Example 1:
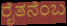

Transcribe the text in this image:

ರೈತನೆಂಬ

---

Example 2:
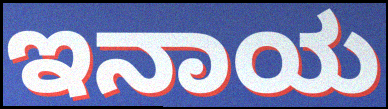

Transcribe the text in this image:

ಇನಾಯ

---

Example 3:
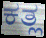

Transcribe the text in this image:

ಕತ್ಲ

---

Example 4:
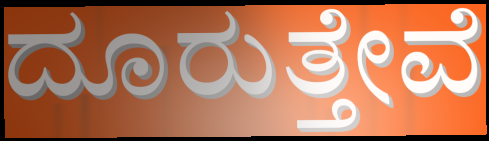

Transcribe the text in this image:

ದೂರುತ್ತೇವೆ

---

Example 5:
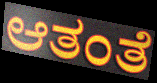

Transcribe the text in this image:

ಆತಂತೆ